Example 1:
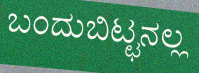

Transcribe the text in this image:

ಬಂದುಬಿಟ್ಟನಲ್ಲ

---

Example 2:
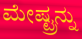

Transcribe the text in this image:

ಮೇಷ್ಟ್ರನ್ನು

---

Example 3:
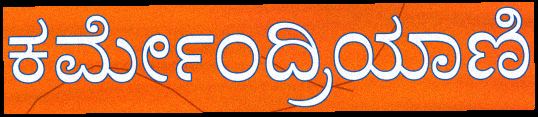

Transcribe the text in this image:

ಕರ್ಮೇಂದ್ರಿಯಾಣಿ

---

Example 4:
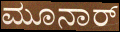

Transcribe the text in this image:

ಮೂನಾರ್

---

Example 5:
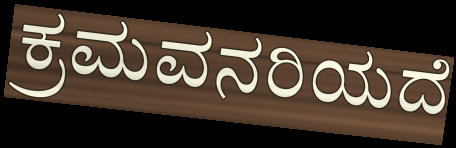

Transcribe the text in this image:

ಕ್ರಮವನರಿಯದೆ